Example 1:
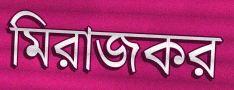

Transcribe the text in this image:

মিরাজকর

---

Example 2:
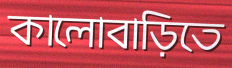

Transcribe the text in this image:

কালোবাড়িতে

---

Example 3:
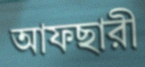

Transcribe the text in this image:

আফছারী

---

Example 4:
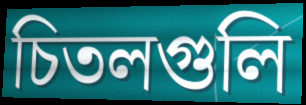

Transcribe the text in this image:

চিতলগুলি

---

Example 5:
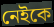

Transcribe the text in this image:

নেইকে